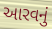
આરવનું